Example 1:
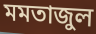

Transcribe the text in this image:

মমতাজুল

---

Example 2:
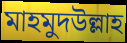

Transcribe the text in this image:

মাহমুদউল্লাহ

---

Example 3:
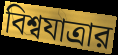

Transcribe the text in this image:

বিশ্বযাত্রার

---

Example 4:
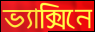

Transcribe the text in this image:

ভ্যাক্সিনে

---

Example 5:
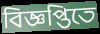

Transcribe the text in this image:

বিজ্ঞপ্তিতে